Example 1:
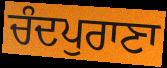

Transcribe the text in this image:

ਚੰਦਪੁਰਾਣਾ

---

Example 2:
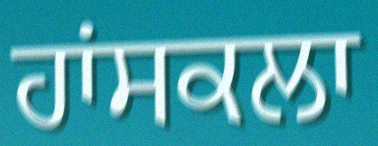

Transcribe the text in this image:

ਹਾਂਸਕਲਾ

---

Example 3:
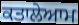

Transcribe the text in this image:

ਕਤਾਲੇਆਮ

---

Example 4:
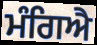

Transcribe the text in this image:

ਮੰਗਿਐ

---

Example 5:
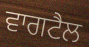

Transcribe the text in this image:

ਵਾਗਟੈਲ